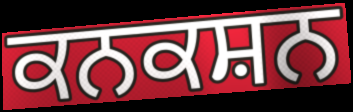
ਕਨਕਸ਼ਨ